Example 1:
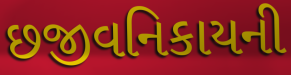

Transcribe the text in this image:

છજીવનિકાયની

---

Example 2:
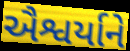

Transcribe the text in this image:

ઐશ્વર્યાને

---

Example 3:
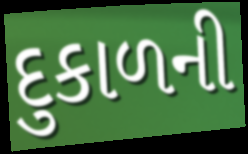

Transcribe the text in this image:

દુકાળની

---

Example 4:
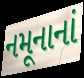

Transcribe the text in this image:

નમૂનાનાં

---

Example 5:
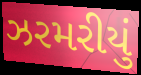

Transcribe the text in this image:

ઝરમરીયું